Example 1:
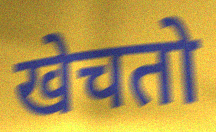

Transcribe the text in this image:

खेचतो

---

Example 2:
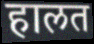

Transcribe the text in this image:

हालत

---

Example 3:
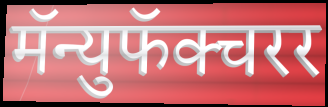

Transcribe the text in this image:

मॅन्युफॅक्चरर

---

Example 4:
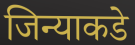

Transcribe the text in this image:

जिन्याकडे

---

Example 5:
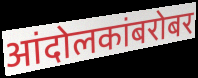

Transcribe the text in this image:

आंदोलकांबरोबर